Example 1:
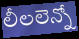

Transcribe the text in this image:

లీలలెన్నో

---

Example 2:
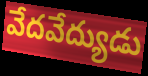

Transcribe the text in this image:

వేదవేద్యుడు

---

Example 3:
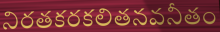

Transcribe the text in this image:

నిరతకరకలితనవనీతం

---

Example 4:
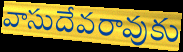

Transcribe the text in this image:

వాసుదేవరావుకు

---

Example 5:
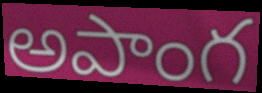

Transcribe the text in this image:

అపాంగ